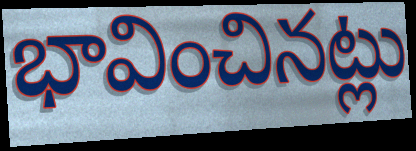
భావించినట్లు